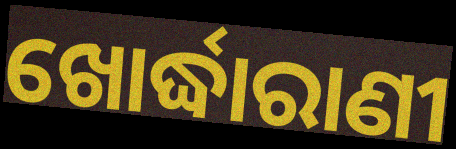
ଖୋର୍ଦ୍ଧାରାଣୀ